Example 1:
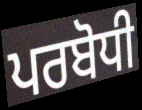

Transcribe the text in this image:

ਪਰਬੋਧੀ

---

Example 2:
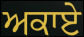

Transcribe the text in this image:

ਅਕਾਏ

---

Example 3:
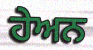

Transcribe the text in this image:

ਹੇਅਨ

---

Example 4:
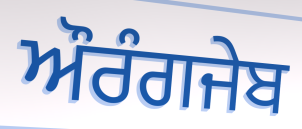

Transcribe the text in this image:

ਔਰੰਗਜੇਬ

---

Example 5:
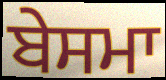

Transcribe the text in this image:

ਬੇਸਮਾ